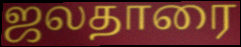
ஜலதாரை